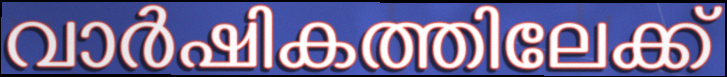
വാർഷികത്തിലേക്ക്